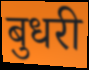
बुधरी